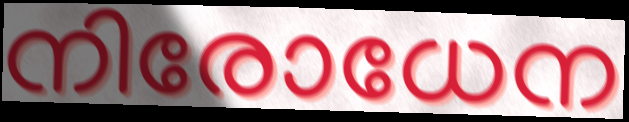
നിരോധേന